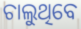
ଚାଲୁଥିବେ